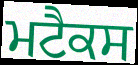
ਮਟੈਕਸ